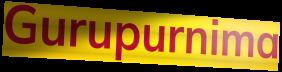
Gurupurnima